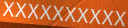
XXXXXXXXXX